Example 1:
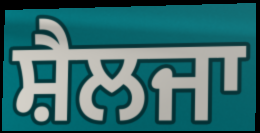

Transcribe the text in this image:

ਸ਼ੈਲਜਾ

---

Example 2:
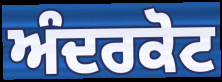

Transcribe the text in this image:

ਅੰਦਰਕੋਟ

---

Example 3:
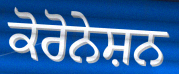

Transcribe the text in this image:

ਕੋਰੋਨੇਸ਼ਨ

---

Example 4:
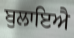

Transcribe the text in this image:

ਬੁਲਾਇਐ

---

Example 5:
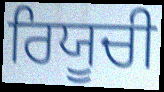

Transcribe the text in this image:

ਰਿਯੂਚੀ